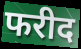
फरीद